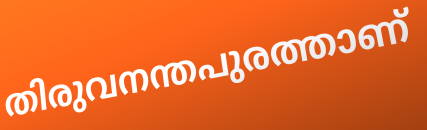
തിരുവനന്തപുരത്താണ്